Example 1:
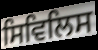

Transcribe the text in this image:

ਸਿਵਿਲਿਸ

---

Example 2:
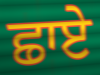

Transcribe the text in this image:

ਛਾਏ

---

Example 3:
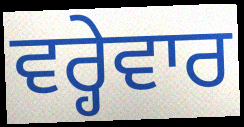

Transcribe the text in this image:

ਵਰ੍ਹੇਵਾਰ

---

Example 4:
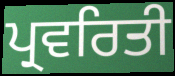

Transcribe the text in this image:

ਪ੍ਰਵਰਿਤੀ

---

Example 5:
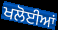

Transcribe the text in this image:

ਖਲੋਈਆਂ